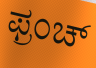
ಫ್ರಂಚ್